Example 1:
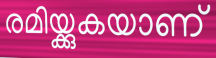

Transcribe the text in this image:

രമിയ്ക്കുകയാണ്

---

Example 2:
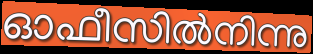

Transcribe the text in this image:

ഓഫീസിൽനിന്നു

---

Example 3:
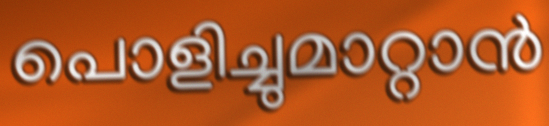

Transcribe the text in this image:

പൊളിച്ചുമാറ്റാൻ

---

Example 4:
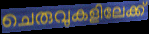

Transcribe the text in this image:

ചെരുവുകളിലേക്ക്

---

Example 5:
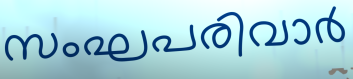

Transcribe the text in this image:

സംഘപരിവാർ